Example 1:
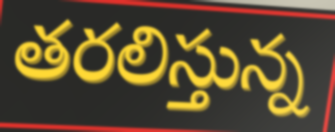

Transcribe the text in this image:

తరలిస్తున్న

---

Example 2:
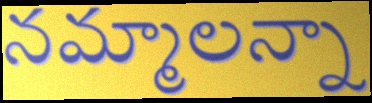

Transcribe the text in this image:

నమ్మాలన్నా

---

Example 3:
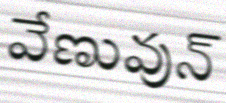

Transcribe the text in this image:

వేణువున్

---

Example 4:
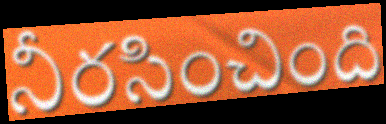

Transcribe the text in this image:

నీరసించింది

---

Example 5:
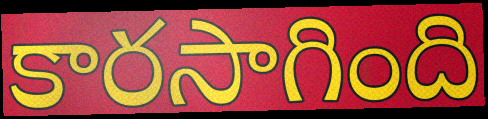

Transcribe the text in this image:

కారసాగింది